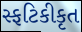
સ્ફટિકીકૃત